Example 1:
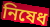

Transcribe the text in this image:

নিষেধ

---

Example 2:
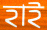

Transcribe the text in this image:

হাই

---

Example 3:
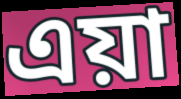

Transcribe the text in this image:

এয়া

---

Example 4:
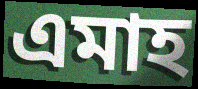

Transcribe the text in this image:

এমাহ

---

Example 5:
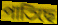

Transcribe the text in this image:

পাতিছে